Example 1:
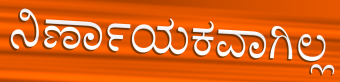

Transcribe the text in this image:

ನಿರ್ಣಾಯಕವಾಗಿಲ್ಲ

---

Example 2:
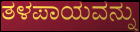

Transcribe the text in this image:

ತಳಪಾಯವನ್ನು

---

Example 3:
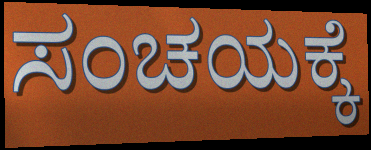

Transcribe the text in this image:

ಸಂಚಯಕ್ಕೆ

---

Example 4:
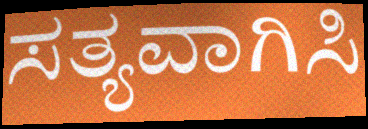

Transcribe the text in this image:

ಸತ್ಯವಾಗಿಸಿ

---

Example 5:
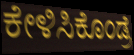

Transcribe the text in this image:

ಕೇಳಿಸಿಕೊಂಡ್ರೆ